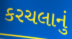
કરચલાનું